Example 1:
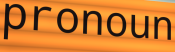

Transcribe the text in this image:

pronoun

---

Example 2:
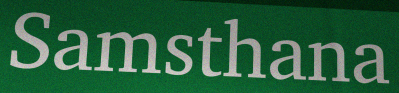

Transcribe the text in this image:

Samsthana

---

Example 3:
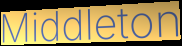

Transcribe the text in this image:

Middleton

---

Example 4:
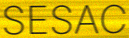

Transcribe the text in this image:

SESAC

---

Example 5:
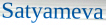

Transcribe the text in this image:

Satyameva